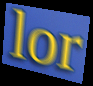
lor